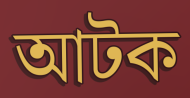
আটক